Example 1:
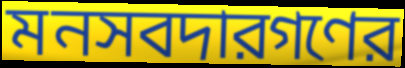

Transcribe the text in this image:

মনসবদারগণের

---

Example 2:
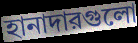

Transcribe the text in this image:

হানাদারগুলো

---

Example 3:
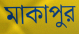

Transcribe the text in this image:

মাকাপুর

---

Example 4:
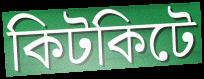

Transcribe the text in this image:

কিটকিটে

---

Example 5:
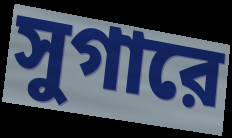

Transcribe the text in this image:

সুগারে